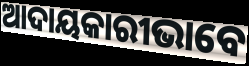
ଆଦାୟକାରୀଭାବେ